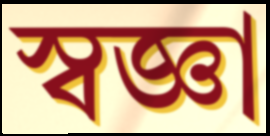
স্বজ্ঞা